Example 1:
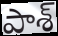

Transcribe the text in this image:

పాశ్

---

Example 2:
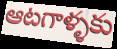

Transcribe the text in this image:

ఆటగాళ్ళకు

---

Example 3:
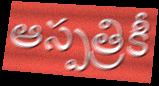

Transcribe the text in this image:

ఆస్పత్రికీ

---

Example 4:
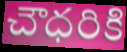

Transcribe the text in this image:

చౌధరికి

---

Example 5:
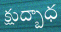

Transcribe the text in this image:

క్షుద్బాధ